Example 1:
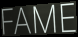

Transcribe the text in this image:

FAME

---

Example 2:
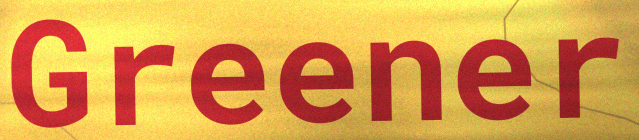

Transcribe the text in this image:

Greener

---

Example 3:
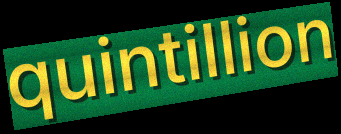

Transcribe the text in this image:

quintillion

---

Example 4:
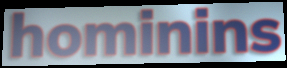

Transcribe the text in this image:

hominins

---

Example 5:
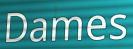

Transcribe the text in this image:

Dames